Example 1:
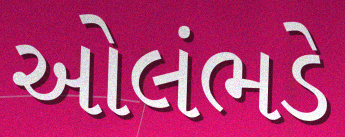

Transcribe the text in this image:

ઓલંભડે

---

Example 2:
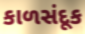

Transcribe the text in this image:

કાળસંદૂક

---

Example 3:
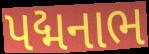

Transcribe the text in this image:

પદ્મનાભ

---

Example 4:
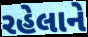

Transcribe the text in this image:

રહેલાને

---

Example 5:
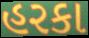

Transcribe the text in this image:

હરકા